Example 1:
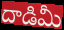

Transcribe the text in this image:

దాడిమీ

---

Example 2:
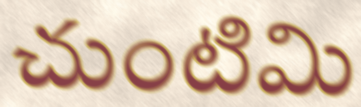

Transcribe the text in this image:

చుంటిమి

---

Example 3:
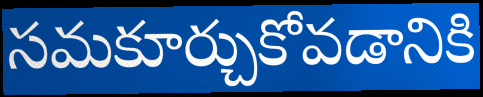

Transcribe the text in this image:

సమకూర్చుకోవడానికి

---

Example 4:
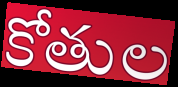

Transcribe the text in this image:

కోతుల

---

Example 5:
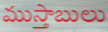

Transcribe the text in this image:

ముస్తాబులు